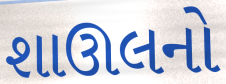
શાઊલનો